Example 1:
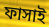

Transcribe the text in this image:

ফাসাই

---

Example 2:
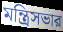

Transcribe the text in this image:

মন্ত্রিসভার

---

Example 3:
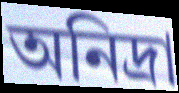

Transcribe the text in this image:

অনিদ্রা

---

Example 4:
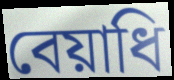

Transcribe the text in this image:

বেয়াধি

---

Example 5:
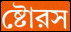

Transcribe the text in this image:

ষ্টোরস